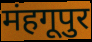
मंहगूपुर